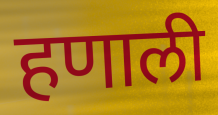
हणाली